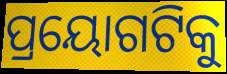
ପ୍ରୟୋଗଟିକୁ